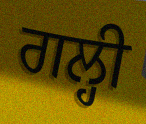
ਗਲ੍ਹੀ